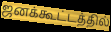
ஜனக்கூட்டத்தில்